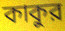
কাকুর